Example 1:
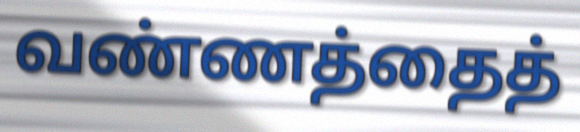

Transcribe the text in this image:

வண்ணத்தைத்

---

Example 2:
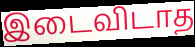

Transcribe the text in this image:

இடைவிடாத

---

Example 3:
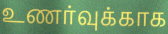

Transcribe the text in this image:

உணர்வுக்காக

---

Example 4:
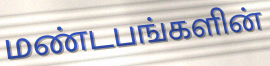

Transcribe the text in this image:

மண்டபங்களின்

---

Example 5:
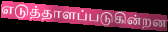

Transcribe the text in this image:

எடுத்தாளப்படுகின்றன